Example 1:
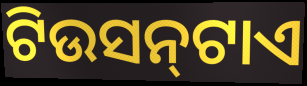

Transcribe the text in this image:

ଟିଉସନ୍‍ଟାଏ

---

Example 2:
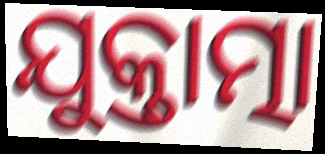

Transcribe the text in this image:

ଯୁକ୍ତାତ୍ମା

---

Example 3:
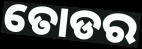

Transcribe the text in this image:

ତୋଡର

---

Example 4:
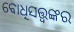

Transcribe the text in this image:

ବୋଧିସତ୍ତ୍ଵଙ୍କର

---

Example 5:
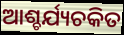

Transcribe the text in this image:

ଆଶ୍ଚର୍ଯ୍ୟଚକିତ